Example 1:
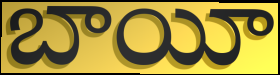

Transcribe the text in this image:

బాయీ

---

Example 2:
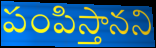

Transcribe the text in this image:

పంపిస్తానని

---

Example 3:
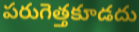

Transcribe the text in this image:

పరుగెత్తకూడదు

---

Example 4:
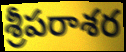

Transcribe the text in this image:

శ్రీపరాశర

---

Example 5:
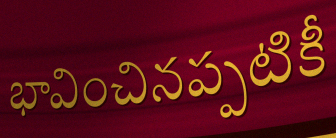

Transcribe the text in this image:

భావించినప్పటికీ